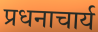
प्रधनाचार्य